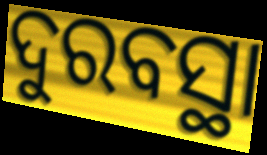
ଦୁରବସ୍ଥା